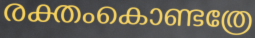
രക്തംകൊണ്ടത്രേ